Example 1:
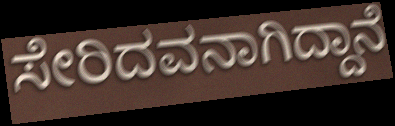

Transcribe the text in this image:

ಸೇರಿದವನಾಗಿದ್ದಾನೆ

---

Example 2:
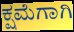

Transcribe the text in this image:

ಕ್ಷಮೆಗಾಗಿ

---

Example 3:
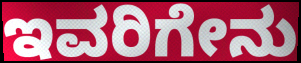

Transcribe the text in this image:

ಇವರಿಗೇನು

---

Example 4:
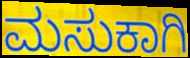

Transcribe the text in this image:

ಮಸುಕಾಗಿ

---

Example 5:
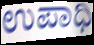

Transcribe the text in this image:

ಉಪಾಧಿ